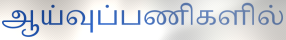
ஆய்வுப்பணிகளில்